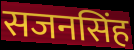
सजनसिंह